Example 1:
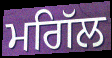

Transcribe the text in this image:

ਮਗਿੱਲ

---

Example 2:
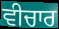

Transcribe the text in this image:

ਵੀਚਾਰ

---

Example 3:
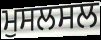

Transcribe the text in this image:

ਮੁਸਲਸਲ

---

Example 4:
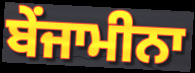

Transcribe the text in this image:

ਬੇਂਜਾਮੀਨਾ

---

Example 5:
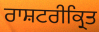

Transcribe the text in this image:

ਰਾਸ਼ਟਰੀਕ੍ਰਿਤ